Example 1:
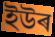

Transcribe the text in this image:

ইউৰ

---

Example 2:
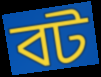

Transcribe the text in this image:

বট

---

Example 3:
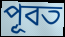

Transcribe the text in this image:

পূবত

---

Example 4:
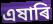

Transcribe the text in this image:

এষাৰি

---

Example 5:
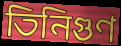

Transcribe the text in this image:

তিনিগুণ